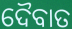
ଦୈବାତ